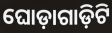
ଘୋଡ଼ାଗାଡ଼ିଟି